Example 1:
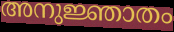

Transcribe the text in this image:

അനുജ്ഞാതം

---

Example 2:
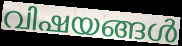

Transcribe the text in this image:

വിഷയങ്ങൾ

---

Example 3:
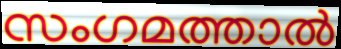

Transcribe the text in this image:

സംഗമത്താൽ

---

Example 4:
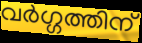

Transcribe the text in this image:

വർഗ്ഗത്തിന്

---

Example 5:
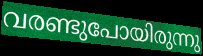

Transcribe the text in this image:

വരണ്ടുപോയിരുന്നു